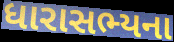
ધારાસભ્યના